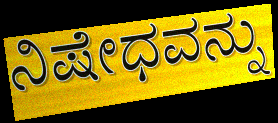
ನಿಷೇಧವನ್ನು